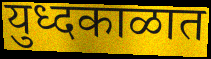
युध्दकाळात